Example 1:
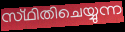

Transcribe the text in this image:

സ്‌ഥിതിചെയ്യുന്ന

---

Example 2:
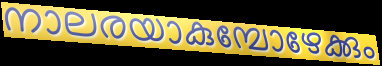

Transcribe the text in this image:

നാലരയാകുമ്പോഴേക്കും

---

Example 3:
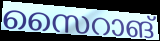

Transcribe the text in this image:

സൈറാങ്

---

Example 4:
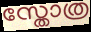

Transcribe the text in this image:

സ്തോത്ര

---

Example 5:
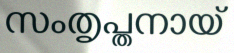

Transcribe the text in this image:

സംതൃപ്തനായ്